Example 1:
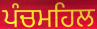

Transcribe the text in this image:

ਪੰਚਮਹਿਲ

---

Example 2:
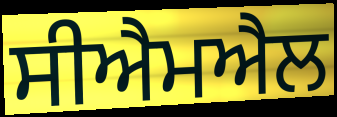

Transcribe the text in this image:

ਸੀਐਮਐਲ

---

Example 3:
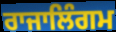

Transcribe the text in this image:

ਰਾਜਾਲਿੰਗਮ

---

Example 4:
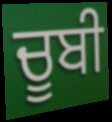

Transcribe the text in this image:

ਚੂਬੀ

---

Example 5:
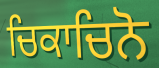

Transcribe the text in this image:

ਚਿਕਾਚਿਨੋ